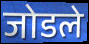
जोडले